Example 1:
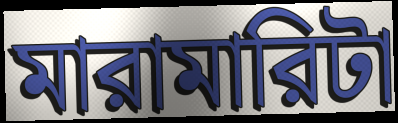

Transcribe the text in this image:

মারামারিটা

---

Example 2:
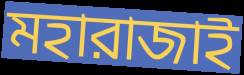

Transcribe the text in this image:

মহারাজাই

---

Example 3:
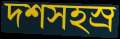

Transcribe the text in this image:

দশসহস্র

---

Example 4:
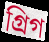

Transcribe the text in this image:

গ্রিগ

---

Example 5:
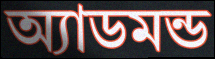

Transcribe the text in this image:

অ্যাডমন্ড